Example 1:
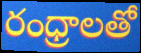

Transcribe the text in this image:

రంధ్రాలతో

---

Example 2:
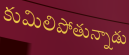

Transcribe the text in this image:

కుమిలిపోతున్నాడు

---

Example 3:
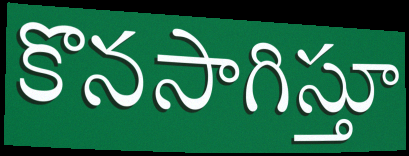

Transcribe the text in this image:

కొనసాగిస్తూ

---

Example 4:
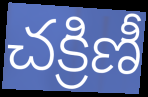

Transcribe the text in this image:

చక్రిణీ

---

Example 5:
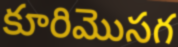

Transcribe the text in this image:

కూరిమొసగ